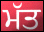
ਮੱਤ